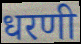
धरणी